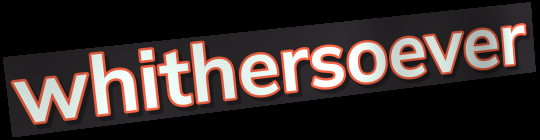
whithersoever